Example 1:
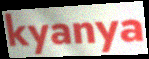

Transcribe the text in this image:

kyanya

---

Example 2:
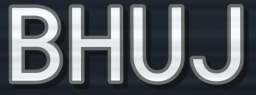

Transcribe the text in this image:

BHUJ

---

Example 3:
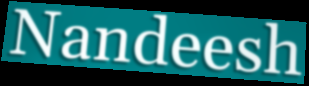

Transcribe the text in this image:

Nandeesh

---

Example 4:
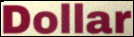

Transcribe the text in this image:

Dollar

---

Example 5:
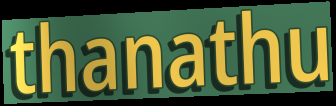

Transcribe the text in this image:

thanathu